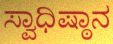
ಸ್ವಾಧಿಷ್ಠಾನ